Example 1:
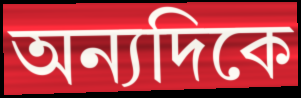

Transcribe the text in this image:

অন্যদিকে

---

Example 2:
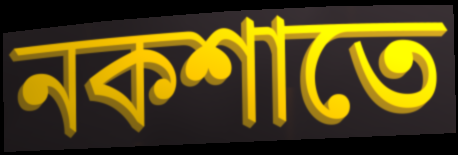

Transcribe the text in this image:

নকশাতে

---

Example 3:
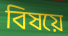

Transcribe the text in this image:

বিষয়ে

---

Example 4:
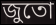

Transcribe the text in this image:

জুতো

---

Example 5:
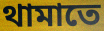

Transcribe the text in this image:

থামাতে